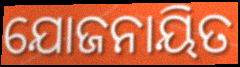
ଯୋଜନାୟିତ